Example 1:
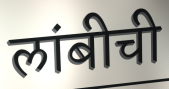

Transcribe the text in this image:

लांबीची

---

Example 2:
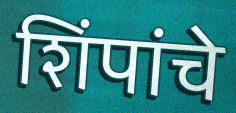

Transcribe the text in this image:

शिंपांचे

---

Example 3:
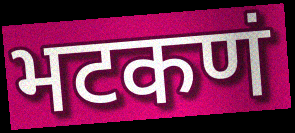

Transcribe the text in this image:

भटकणं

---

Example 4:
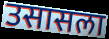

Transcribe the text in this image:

उसासला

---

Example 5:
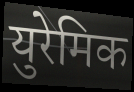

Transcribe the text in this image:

युरेमिक